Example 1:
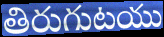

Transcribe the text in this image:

తిరుగుటయు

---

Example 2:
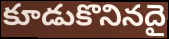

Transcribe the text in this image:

కూడుకొనినదై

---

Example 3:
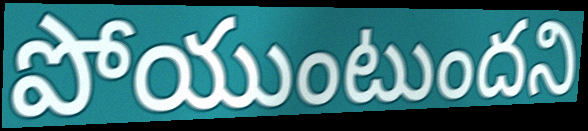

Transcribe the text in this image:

పోయుంటుందని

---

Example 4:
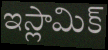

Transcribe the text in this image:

ఇస్లామిక్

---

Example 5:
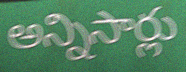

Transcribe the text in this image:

అన్నిసార్లు